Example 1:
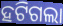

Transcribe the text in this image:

ହଟିଗଲା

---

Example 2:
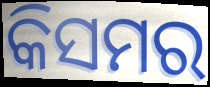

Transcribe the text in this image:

କିସମର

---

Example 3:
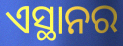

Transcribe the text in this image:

ଏସ୍ଥାନର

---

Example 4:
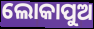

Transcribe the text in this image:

ଲୋକାପୁଅ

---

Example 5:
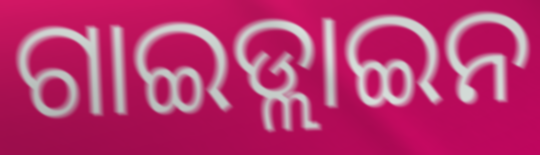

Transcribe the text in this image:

ଗାଇଡ୍ଲାଇନ